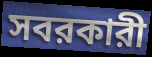
সবরকারী